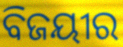
ବିଜୟୀର